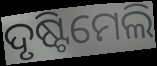
ଦୃଷ୍ଟିମେଲି